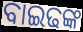
ବାଇଢଙ୍କ